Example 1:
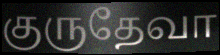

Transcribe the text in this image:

குருதேவா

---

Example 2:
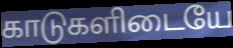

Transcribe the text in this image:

காடுகளிடையே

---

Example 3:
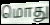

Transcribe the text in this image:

மொது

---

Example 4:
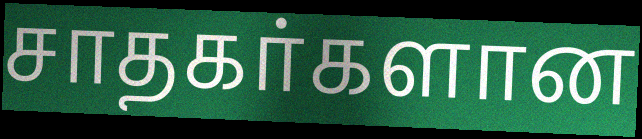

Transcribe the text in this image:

சாதகர்களான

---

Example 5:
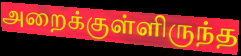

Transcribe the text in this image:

அறைக்குள்ளிருந்த